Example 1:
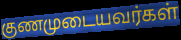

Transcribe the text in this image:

குணமுடையவர்கள்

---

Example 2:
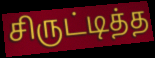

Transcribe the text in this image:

சிருட்டித்த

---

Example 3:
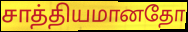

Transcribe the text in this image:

சாத்தியமானதோ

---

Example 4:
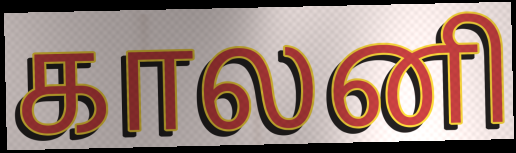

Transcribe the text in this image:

காலனி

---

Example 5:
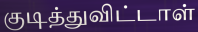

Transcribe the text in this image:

குடித்துவிட்டாள்